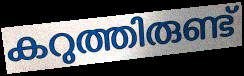
കറുത്തിരുണ്ട്